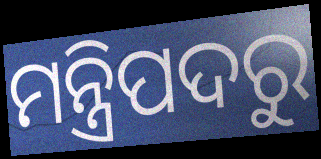
ମନ୍ତ୍ରିପଦରୁ